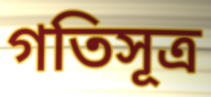
গতিসূত্র